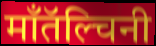
माँतॅल्चिनी